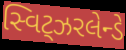
સ્વિટ્ઝરલેન્ડે